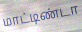
மாட்டிண்டா